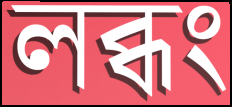
লব্ধং